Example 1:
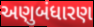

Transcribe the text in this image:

અણુબંધારણ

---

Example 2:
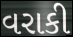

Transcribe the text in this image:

વરાકી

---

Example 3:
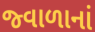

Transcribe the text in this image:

જ્વાળાનાં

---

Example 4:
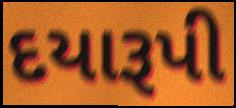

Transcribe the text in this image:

દયારૂપી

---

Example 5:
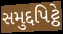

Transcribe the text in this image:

સમુદ્દપિટ્ઠે